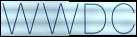
WWDC